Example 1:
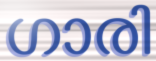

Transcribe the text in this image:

ഗാരി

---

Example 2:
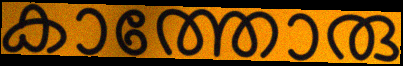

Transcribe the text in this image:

കാത്തോരു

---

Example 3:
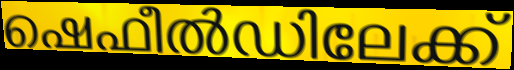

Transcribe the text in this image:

ഷെഫീൽഡിലേക്ക്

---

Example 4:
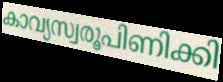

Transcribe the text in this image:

കാവ്യസ്വരൂപിണിക്കി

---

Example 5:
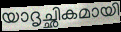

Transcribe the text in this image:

യാദൃച്ഛികമായി